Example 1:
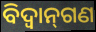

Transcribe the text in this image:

ବିଦ୍ୱାନ୍‌ଗଣ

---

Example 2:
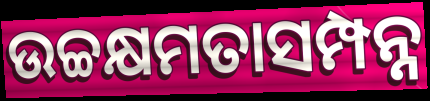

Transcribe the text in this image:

ଉଚ୍ଚକ୍ଷମତାସମ୍ପନ୍ନ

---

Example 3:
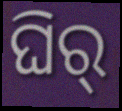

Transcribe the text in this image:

ଘିର୍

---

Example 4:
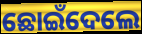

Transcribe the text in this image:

ଛୋଇଁଦେଲେ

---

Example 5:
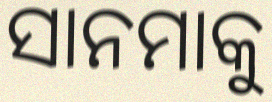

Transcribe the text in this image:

ସାନମାକୁ